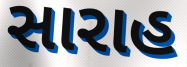
સારાહ